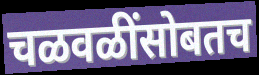
चळवळींसोबतच